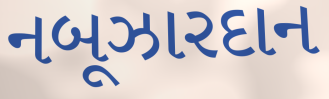
નબૂઝારદાન